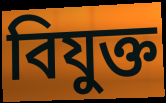
বিযুক্ত